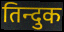
तिन्दुक